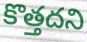
కొత్తదని